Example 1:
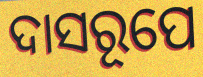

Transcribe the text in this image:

ଦାସରୂପେ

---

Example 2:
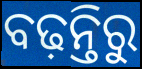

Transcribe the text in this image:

ବଢ଼ନ୍ତିରୁ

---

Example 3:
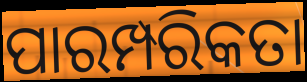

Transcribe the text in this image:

ପାରମ୍ପରିକତା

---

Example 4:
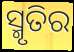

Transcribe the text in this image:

ସ୍ମୃତିର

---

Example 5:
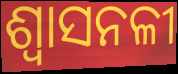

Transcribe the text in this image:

ଶ୍ଵାସନଳୀ